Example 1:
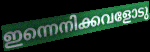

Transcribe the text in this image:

ഇന്നെനിക്കവളോടു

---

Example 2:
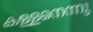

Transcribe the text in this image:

കള്ളനെന്നു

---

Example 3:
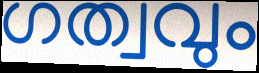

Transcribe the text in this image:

ഗത്വവും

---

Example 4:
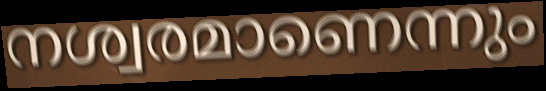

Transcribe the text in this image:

നശ്വരമാണെന്നും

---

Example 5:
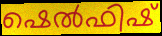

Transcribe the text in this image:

ഷെൽഫിഷ്